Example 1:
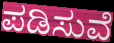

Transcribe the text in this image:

ಪಡಿಸುವೆ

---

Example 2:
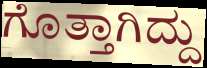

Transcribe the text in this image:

ಗೊತ್ತಾಗಿದ್ದು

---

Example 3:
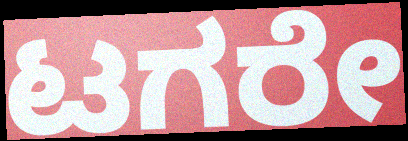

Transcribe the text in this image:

ಟಗರೇ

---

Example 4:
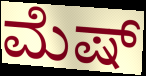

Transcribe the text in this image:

ಮೆಷ್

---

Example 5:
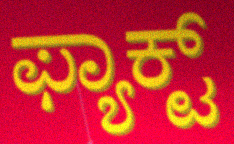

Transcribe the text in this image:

ಫ್ಯಾಕ್ಟ್